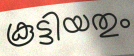
കൂട്ടിയതും